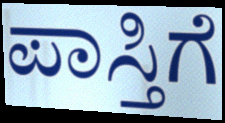
ಪಾಸ್ತಿಗೆ